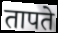
तापते